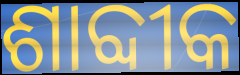
ଶାବ୍ଦୀକ